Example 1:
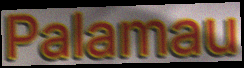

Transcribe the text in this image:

Palamau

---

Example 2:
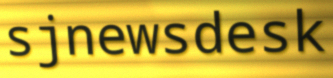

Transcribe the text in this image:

sjnewsdesk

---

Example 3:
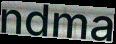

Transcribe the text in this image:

ndma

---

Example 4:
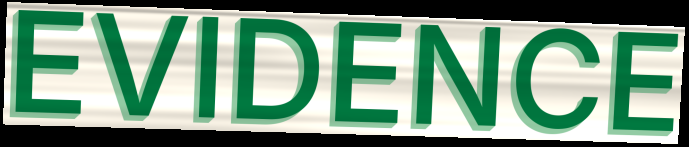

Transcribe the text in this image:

EVIDENCE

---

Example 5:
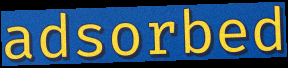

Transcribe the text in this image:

adsorbed